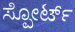
ಸ್ಪೋರ್ಟ್